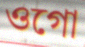
ওগো